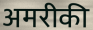
अमरीकी